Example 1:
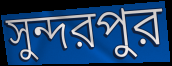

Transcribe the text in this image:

সুন্দরপুর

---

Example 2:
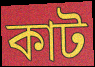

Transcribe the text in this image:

কাট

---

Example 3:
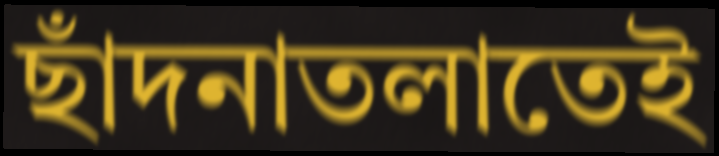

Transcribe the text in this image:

ছাঁদনাতলাতেই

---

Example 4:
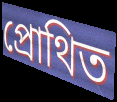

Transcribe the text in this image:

প্রোথিত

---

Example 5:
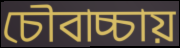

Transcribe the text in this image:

চৌবাচ্চায়